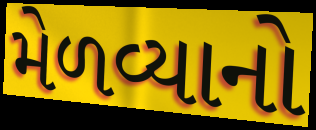
મેળવ્યાનો